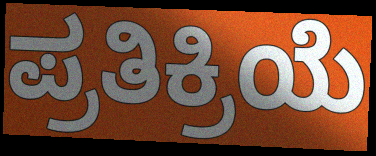
ಪ್ರತಿಕ್ರಿಯೆ